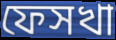
ফেসখা